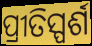
ପ୍ରୀତିସ୍ପର୍ଶ